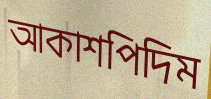
আকাশপিদিম